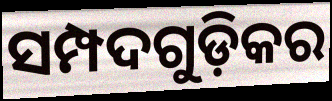
ସମ୍ପଦଗୁଡ଼ିକର